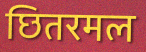
छितरमल